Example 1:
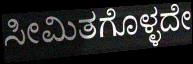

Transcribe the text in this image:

ಸೀಮಿತಗೊಳ್ಳದೇ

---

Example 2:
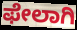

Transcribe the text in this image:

ಫೇಲಾಗಿ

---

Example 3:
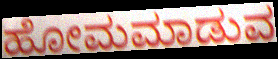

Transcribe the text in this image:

ಹೋಮಮಾಡುವ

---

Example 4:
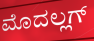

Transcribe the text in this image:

ಮೊದಲ್ಲಗ್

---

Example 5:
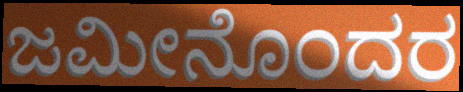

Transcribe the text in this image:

ಜಮೀನೊಂದರ